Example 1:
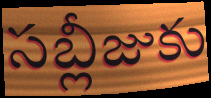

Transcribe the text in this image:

సబ్లీజుకు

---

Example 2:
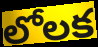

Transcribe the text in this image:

లోలక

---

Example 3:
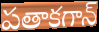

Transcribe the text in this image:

పతాకగాన్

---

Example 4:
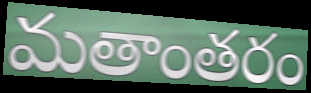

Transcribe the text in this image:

మతాంతరం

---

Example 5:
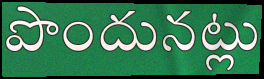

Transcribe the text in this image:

పొందునట్లు